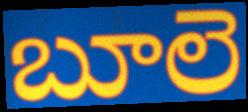
బూలె